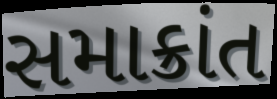
સમાક્રાંત